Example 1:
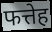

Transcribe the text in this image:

फत्तेह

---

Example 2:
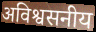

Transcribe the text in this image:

अविश्वसनीय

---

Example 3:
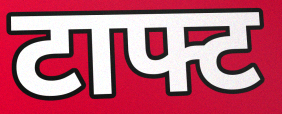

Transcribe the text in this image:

टाफ्ट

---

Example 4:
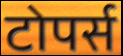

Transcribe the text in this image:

टोपर्स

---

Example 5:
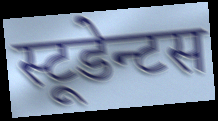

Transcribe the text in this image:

स्टूडेन्टस